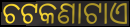
ଚଟକଣାଟାଏ